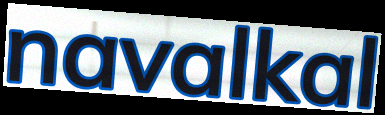
navalkal